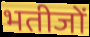
भतीजों